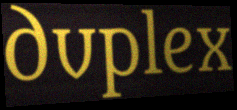
duplex